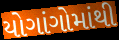
યોગાંગોમાંથી